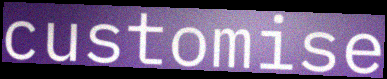
customise